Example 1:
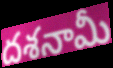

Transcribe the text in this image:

దశనామీ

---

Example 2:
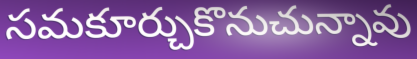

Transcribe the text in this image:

సమకూర్చుకొనుచున్నావు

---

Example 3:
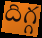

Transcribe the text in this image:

దిగ్గ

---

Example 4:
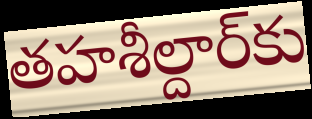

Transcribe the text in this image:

తహశీల్దార్‌కు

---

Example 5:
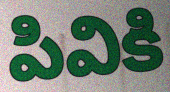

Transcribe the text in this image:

పివికి